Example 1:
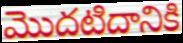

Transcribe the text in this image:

మొదటిదానికి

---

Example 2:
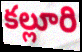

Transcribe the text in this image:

కల్లూరి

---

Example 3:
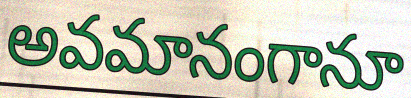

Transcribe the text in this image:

అవమానంగానూ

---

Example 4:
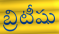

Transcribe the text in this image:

బ్రిటీషు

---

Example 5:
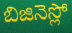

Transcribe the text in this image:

బిజినెస్లో